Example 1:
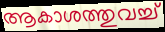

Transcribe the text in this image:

ആകാശത്തുവച്ച്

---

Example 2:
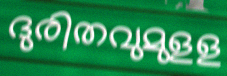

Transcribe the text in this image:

ദുരിതവുമുളള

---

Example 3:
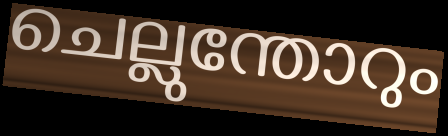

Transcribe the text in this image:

ചെല്ലുന്തോറും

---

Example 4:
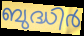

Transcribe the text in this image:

ബുദ്ധിർ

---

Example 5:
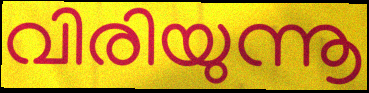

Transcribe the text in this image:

വിരിയുന്നൂ